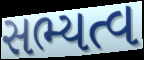
સભ્યત્વ